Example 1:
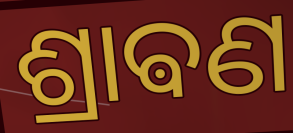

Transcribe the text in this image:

ଶ୍ରାଵଣ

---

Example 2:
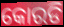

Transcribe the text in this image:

କୋରଡି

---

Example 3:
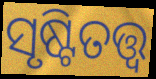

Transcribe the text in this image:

ସୃଷ୍ଟିତତ୍ତ୍ୱ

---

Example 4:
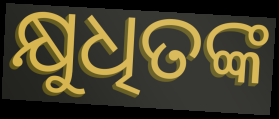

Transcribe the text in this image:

କ୍ଷୁଧିତଙ୍କ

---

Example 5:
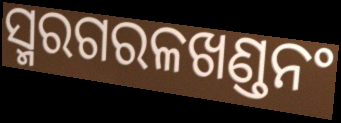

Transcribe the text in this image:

ସ୍ମରଗରଳଖଣ୍ଡନଂ